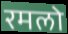
रमलो